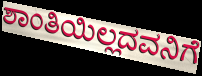
ಶಾಂತಿಯಿಲ್ಲದವನಿಗೆ